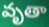
వృతా